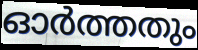
ഓർത്തതും